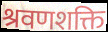
श्रवणशक्ति